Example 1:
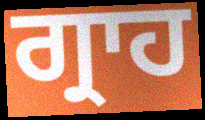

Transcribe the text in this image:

ਗ੍ਰਾਹ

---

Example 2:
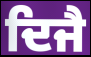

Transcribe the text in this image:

ਦਿਜੈ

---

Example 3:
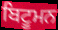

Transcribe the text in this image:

ਬਿਟੂਮਨ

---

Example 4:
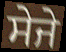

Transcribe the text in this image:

ਸੇਜੇ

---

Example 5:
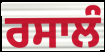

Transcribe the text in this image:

ਰਸਾਲੰ